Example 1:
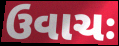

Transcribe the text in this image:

ઉવાચઃ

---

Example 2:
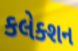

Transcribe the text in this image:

કલેક્શન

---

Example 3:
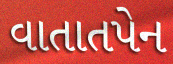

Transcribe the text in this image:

વાતાતપેન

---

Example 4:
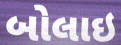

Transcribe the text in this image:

બોલાઇ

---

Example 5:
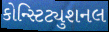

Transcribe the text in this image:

કોન્સ્ટિટ્યુશનલ